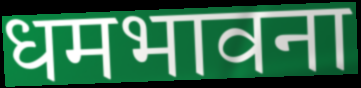
धमभावना